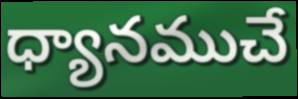
ధ్యానముచే